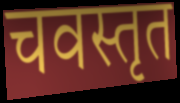
चवस्तृत